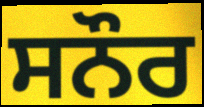
ਸਨੌਰ